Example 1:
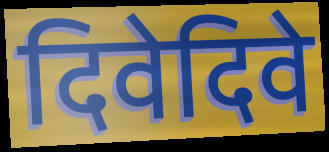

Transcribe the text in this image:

दिवेदिवे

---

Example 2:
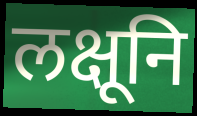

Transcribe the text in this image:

लक्षूनि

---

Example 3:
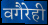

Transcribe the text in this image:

वगैरेही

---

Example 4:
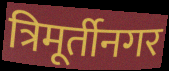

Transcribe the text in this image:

त्रिमूर्तीनगर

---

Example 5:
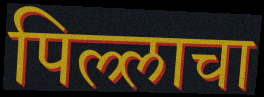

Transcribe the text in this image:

पिल्लाचा